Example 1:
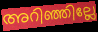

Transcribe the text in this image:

അറിഞ്ഞില്ലേ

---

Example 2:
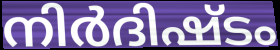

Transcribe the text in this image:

നിർദിഷ്ടം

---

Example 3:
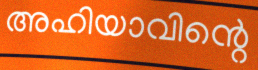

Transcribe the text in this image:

അഹിയാവിന്റെ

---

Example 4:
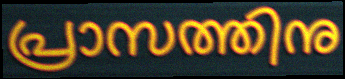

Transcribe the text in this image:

പ്രാസത്തിനു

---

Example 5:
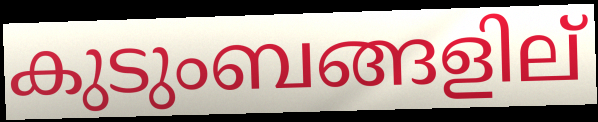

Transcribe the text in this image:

കുടുംബങ്ങളില്